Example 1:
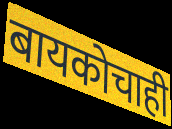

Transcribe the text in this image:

बायकोचाही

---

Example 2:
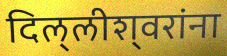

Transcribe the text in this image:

दिल्लीश्वरांना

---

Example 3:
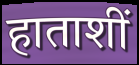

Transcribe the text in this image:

हाताशीं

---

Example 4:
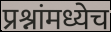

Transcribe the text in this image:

प्रश्नांमध्येच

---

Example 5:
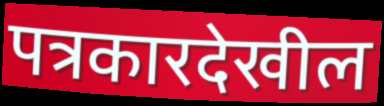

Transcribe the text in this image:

पत्रकारदेखील